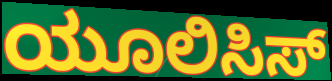
ಯೂಲಿಸಿಸ್